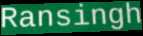
Ransingh